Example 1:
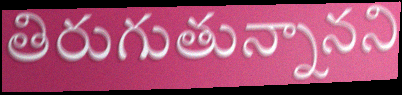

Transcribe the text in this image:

తిరుగుతున్నానని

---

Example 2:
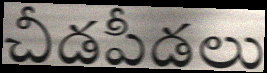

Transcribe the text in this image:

చీడపీడలు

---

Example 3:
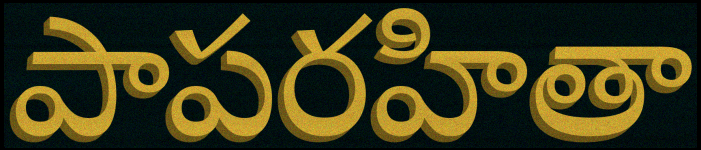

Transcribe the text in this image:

పాపరహితా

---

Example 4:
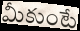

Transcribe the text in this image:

మీకుంటే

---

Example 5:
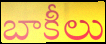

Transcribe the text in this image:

బాకీలు